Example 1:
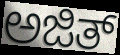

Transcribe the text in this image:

ಅಜಿತ್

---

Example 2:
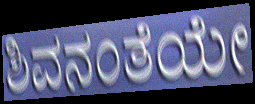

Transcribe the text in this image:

ಶಿವನಂತೆಯೇ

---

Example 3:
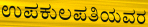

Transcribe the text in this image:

ಉಪಕುಲಪತಿಯವರ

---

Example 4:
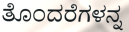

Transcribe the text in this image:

ತೊಂದರೆಗಳನ್ನ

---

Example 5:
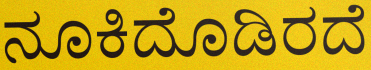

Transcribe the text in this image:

ನೂಕಿದೊಡಿರದೆ